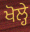
ਖੋਲ੍ਹੇ